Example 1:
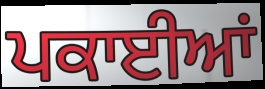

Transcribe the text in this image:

ਪਕਾਈਆਂ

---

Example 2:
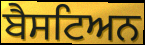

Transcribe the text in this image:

ਬੈਸਟਿਅਨ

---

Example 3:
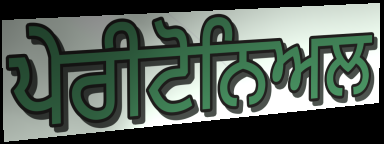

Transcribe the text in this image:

ਪੇਰੀਟੋਨਿਅਲ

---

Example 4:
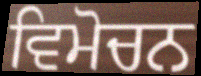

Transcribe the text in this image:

ਵਿਮੋਚਨ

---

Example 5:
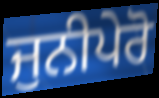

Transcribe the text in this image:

ਜੁਨੀਪੇਰੋ